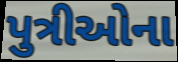
પુત્રીઓના